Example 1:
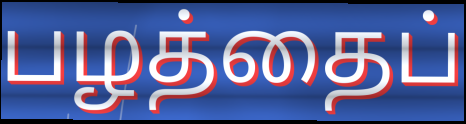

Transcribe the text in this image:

பழத்தைப்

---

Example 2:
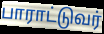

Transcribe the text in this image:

பாராட்டுவர்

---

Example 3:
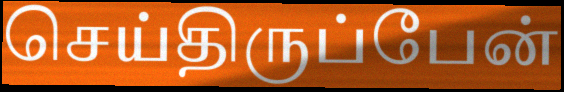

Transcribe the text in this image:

செய்திருப்பேன்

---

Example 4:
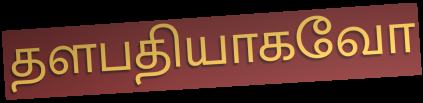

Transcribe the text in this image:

தளபதியாகவோ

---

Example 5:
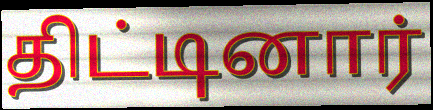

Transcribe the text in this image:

திட்டினார்